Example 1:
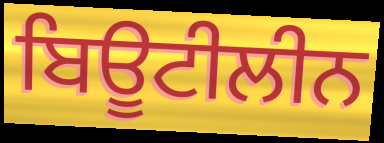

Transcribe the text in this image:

ਬਿਊਟੀਲੀਨ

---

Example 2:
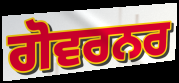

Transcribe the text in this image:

ਗੋਵਰਨਰ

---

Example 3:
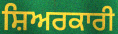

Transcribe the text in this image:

ਸ਼ਿਅਰਕਾਰੀ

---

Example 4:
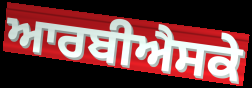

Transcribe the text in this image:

ਆਰਬੀਐਸਕੇ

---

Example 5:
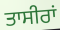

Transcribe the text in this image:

ਤਾਸੀਰਾਂ